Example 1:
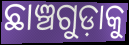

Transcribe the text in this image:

ଛାଞ୍ଚଗୁଡ଼ାକୁ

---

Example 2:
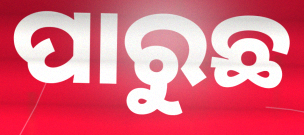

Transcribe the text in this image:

ପାରୁଛ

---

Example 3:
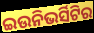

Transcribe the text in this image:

ଇଉନିଭର୍ସିଟିର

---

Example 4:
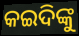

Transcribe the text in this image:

କଇଦିଙ୍କୁ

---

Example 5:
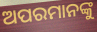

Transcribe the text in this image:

ଅପରମାନଙ୍କୁ